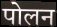
पोलन